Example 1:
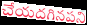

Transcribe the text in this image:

చేయదగినపని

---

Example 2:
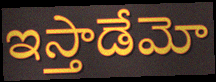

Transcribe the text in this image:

ఇస్తాడేమో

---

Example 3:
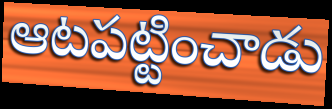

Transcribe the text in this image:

ఆటపట్టించాడు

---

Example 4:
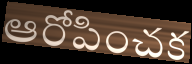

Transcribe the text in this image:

ఆరోపించక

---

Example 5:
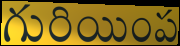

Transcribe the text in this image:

గురియింప